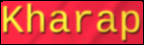
Kharap